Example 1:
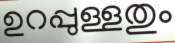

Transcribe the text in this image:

ഉറപ്പുള്ളതും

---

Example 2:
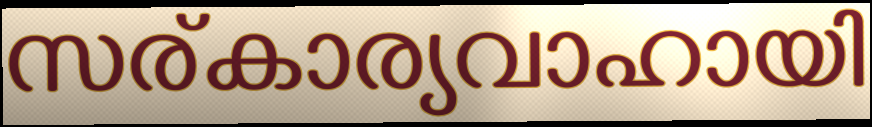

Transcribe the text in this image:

സര്കാര്യവാഹായി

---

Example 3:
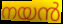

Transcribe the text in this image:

നയൻ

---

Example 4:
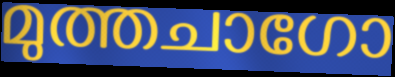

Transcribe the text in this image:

മുത്തചാഗോ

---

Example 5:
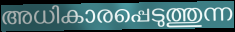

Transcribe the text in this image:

അധികാരപ്പെടുത്തുന്ന